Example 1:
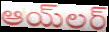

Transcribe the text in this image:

ఆయ్‌లర్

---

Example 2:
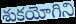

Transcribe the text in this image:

శుకయోగిని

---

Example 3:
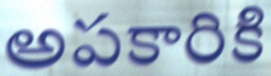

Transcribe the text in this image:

అపకారికి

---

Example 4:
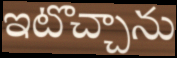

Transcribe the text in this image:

ఇటొచ్చాను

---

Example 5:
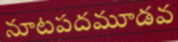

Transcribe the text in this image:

నూటపదమూడవ